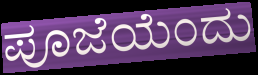
ಪೂಜೆಯೆಂದು